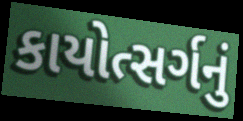
કાયોત્સર્ગનું